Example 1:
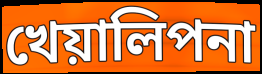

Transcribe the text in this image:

খেয়ালিপনা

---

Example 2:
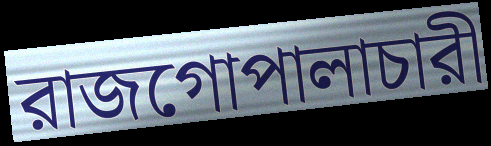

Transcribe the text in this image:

রাজগোপালাচারী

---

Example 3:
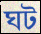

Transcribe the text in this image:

ঘট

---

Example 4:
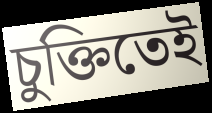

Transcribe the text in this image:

চুক্তিতেই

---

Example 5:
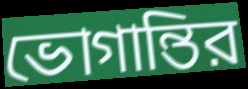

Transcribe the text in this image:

ভোগান্তির